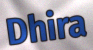
Dhira